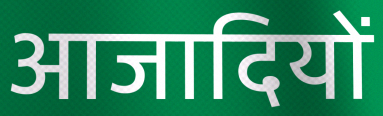
आजादियों